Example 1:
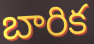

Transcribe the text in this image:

బారిక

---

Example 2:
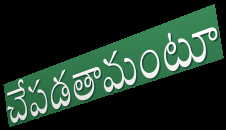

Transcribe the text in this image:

చేపడతామంటూ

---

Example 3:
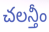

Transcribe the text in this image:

చలన్తీం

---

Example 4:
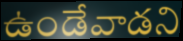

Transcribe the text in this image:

ఉండేవాడని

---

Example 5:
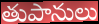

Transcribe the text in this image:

తుపానులు